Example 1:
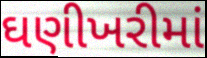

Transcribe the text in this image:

ઘણીખરીમાં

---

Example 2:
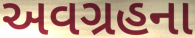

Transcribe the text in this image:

અવગ્રહના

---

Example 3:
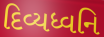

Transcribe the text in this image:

દિવ્યધ્વનિ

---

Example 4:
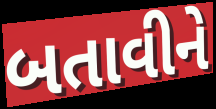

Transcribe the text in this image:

બતાવીને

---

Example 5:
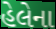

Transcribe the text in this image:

હેલેના